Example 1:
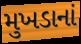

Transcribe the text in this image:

મુખડાનાં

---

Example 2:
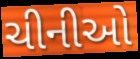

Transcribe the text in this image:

ચીનીઓ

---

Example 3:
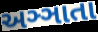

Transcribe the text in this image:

અઞ્ઞાતા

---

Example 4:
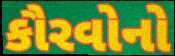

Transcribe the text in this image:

કૌરવોનો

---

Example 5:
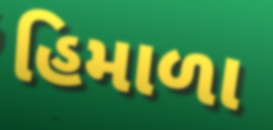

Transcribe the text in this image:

હિમાળા